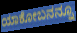
ಯಾಕೋಬನನ್ನೂ